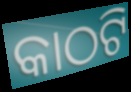
କାଠଟି